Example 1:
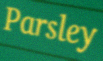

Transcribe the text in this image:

Parsley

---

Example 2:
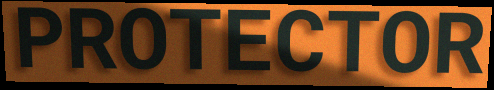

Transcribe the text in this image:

PROTECTOR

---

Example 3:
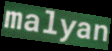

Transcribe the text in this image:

malyan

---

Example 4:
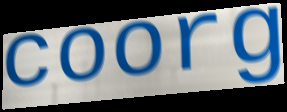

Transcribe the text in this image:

coorg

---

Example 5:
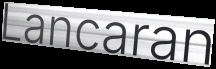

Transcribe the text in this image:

Lancaran